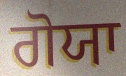
ਗੋਯਾ